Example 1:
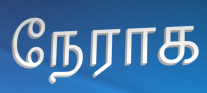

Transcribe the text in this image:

நேராக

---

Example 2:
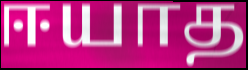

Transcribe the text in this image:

ஈயாத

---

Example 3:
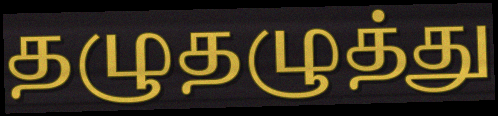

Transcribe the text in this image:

தழுதழுத்து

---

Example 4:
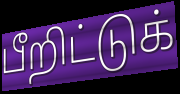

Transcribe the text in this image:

பீறிட்டுக்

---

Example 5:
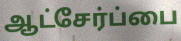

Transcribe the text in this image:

ஆட்சேர்ப்பை